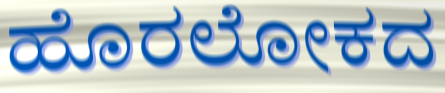
ಹೊರಲೋಕದ